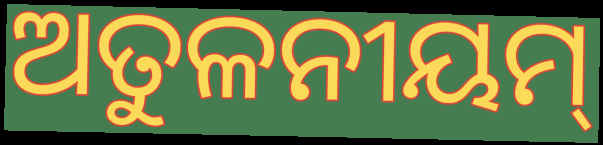
ଅତୁଳନୀୟମ୍